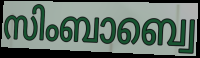
സിംബാബ്വെ